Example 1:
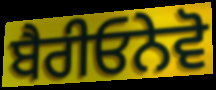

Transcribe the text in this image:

ਬੈਰੀਓਨੇਵੋ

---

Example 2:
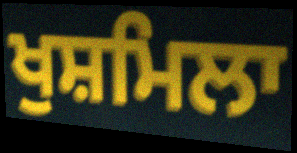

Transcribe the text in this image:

ਖੁਸ਼ਮਿਲਾ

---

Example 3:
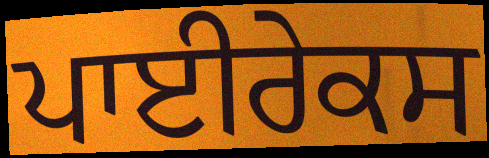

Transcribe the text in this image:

ਪਾਈਰੇਕਸ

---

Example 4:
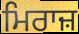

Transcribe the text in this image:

ਮਿਰਾਜ਼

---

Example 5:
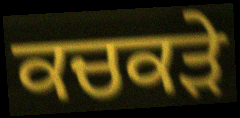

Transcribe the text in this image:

ਕਚਕੜੇ